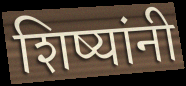
शिष्यांनी